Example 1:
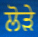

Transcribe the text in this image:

ਲੋੜੇ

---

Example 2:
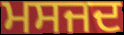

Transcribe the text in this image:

ਮਸਜਦ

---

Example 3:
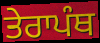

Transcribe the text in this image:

ਤੇਰਾਪੰਥ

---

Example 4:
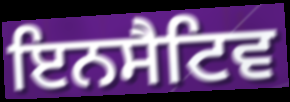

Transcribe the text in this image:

ਇਨਸੈਟਿਵ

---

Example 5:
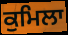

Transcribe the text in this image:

ਕੁਮਿਲਾ